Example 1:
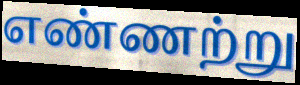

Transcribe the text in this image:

எண்ணற்று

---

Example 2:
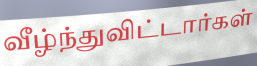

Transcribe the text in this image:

வீழ்ந்துவிட்டார்கள்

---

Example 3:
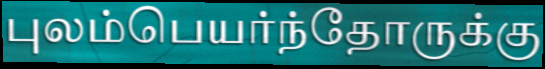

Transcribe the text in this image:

புலம்பெயர்ந்தோருக்கு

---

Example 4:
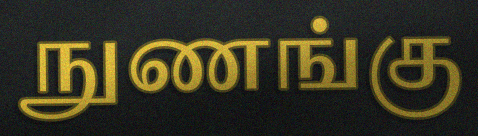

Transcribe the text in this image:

நுணங்கு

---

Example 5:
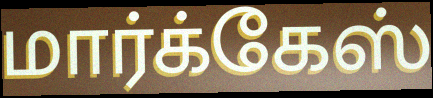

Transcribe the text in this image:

மார்க்கேஸ்